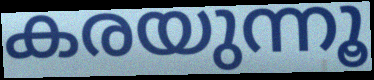
കരയുന്നൂ